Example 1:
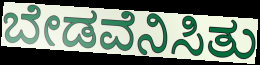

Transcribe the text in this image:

ಬೇಡವೆನಿಸಿತು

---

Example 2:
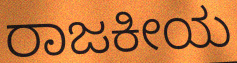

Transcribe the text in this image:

ರಾಜಕೀಯ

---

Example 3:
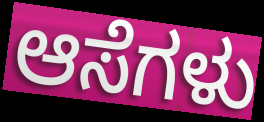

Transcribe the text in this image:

ಆಸೆಗಳು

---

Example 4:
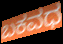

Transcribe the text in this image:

ಬಕವಧ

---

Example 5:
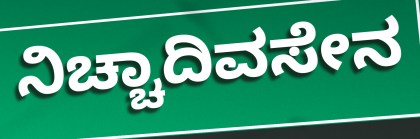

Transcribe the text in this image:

ನಿಚ್ಚಾದಿವಸೇನ